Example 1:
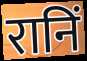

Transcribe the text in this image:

रानिं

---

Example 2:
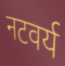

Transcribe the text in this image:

नटवर्य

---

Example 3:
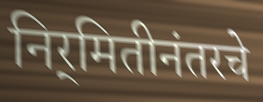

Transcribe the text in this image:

निर्मितीनंतरचे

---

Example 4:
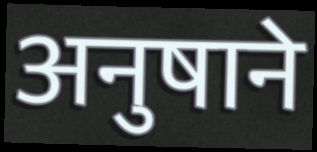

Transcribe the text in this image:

अनुषाने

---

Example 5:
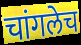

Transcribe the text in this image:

चांगलेच